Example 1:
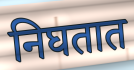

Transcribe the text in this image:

निघतात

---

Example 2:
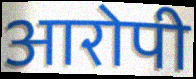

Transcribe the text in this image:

आरोपी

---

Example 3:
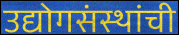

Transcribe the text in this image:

उद्योगसंस्थांची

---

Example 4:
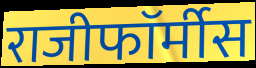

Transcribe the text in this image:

राजीफॉर्मीस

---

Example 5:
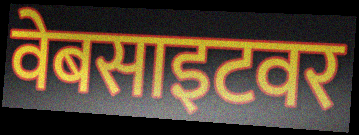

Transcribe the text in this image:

वेबसाइटवर